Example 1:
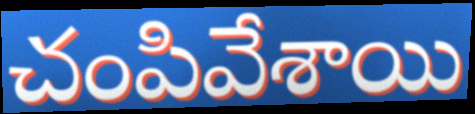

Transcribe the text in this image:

చంపివేశాయి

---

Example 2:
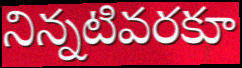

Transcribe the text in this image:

నిన్నటివరకూ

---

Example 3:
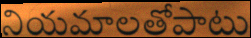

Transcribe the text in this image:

నియమాలతోపాటు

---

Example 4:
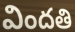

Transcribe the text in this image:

విందతి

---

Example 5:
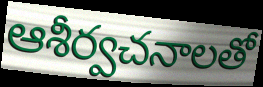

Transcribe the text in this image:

ఆశీర్వచనాలతో